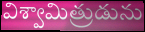
విశ్వామిత్రుడును